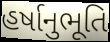
હર્ષાનુભૂતિ